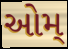
ઓમ્